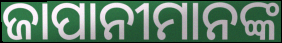
ଜାପାନୀମାନଙ୍କ